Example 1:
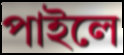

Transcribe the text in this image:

পাইলে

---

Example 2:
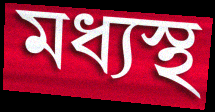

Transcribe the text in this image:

মধ্যস্থ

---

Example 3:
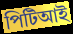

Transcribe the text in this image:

পিটিআই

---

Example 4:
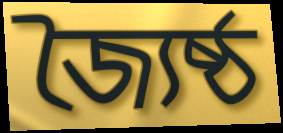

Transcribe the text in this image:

জ্যৈষ্ঠ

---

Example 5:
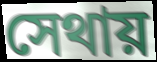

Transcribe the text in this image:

সেথায়